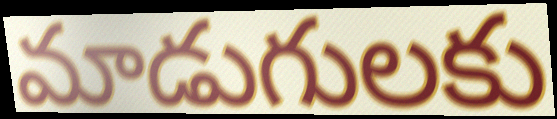
మాడుగులకు